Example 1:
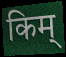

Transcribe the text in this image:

किम्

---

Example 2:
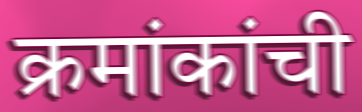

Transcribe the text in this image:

क्रमांकांची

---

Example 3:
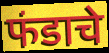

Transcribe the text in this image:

फंडाचे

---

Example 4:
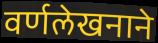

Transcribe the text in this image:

वर्णलेखनाने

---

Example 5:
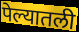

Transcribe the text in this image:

पेल्यातली